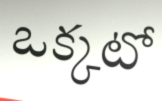
ఒక్కటో